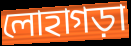
লোহাগড়া